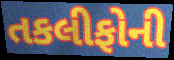
તકલીફોની